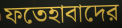
ফতেহাবাদের